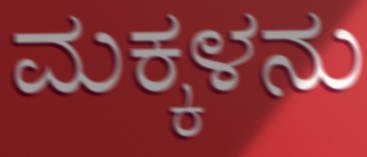
ಮಕ್ಕಳನು